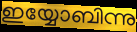
ഇയ്യോബിന്നു